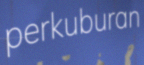
perkuburan